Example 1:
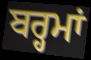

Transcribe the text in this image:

ਬਰ੍ਹਮਾਂ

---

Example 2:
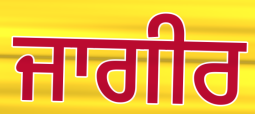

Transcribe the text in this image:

ਜਾਗੀਰ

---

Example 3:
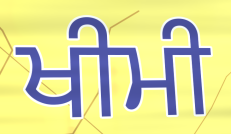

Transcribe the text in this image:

ਖੀਮੀ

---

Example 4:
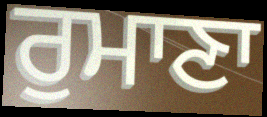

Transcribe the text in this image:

ਰੁਮਾਣਾ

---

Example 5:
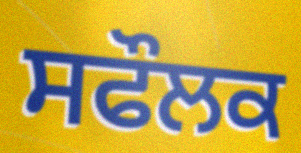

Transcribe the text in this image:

ਸਫੌਲਕ